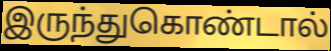
இருந்துகொண்டால்